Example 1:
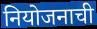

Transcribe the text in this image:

नियोजनाची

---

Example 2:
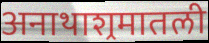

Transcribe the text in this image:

अनाथाश्रमातली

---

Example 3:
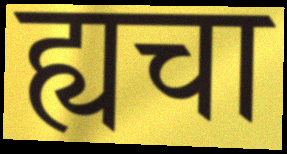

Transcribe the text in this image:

ह्यचा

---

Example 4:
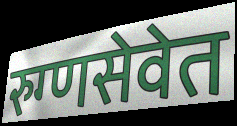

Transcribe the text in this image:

रुग्णसेवेत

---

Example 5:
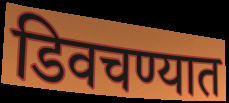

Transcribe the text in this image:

डिवचण्यात